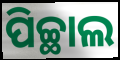
ପିଚ୍ଛାଲ